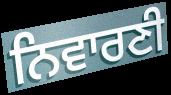
ਨਿਵਾਰਣੀ